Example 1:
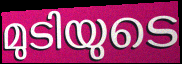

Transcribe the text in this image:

മുടിയുടെ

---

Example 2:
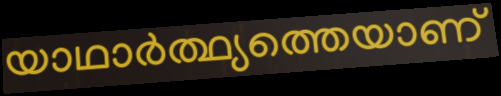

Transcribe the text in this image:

യാഥാർത്ഥ്യത്തെയാണ്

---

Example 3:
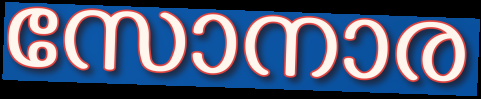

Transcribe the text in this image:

സോനാര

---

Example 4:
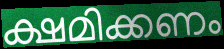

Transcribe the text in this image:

ക്ഷമിക്കണം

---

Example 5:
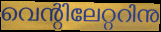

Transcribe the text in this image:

വെന്റിലേറ്ററിനു